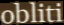
obliti